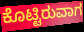
ಕೊಟ್ಟಿರುವಾಗ